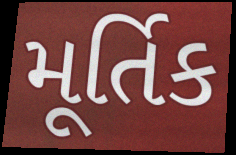
મૂર્તિક